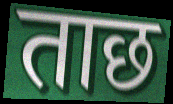
ताछ